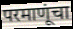
परमाणूंचा